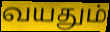
வயதும்